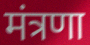
मंत्रणा